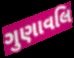
ગુણાવલિ